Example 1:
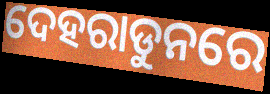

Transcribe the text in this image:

ଦେହରାଡୁନରେ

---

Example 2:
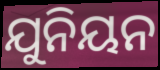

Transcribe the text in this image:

ଯୁନିୟନ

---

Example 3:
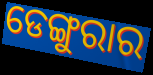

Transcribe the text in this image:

ଡେଙ୍ଗୁରାର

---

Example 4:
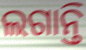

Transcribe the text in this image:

ଲଗାନ୍ତି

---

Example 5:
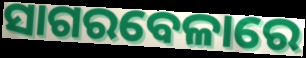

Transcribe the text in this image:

ସାଗରବେଳାରେ